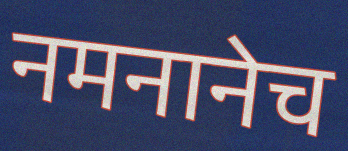
नमनानेच